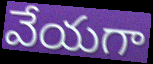
వేయగా